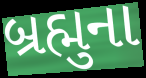
બ્રહ્મુના